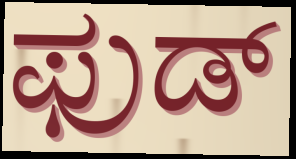
ಫುಡ್